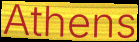
Athens